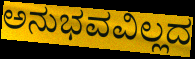
ಅನುಭವವಿಲ್ಲದ